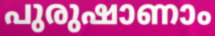
പുരുഷാണാം